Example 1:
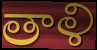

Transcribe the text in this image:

తాళి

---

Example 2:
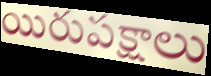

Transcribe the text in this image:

యిరుపక్షాలు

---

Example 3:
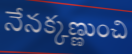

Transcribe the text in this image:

నేనక్కణ్ణుంచి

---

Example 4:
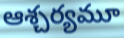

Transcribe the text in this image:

ఆశ్చర్యమూ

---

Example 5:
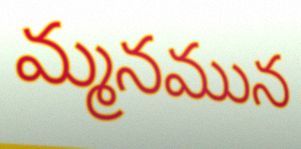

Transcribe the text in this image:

మ్మనమున